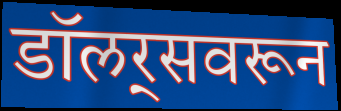
डॉलर्सवरून